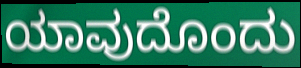
ಯಾವುದೊಂದು